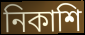
নিকাশি